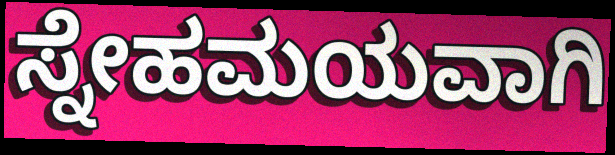
ಸ್ನೇಹಮಯವಾಗಿ